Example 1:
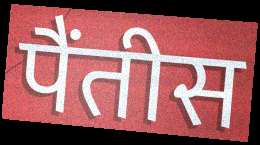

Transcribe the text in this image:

पैंतीस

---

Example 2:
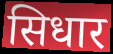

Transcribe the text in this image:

सिधार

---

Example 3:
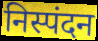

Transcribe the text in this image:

निस्पंदन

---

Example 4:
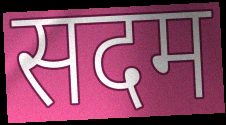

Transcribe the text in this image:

सदम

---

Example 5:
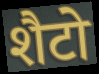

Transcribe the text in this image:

शैटो